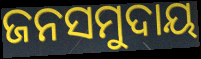
ଜନସମୁଦାୟ